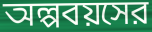
অল্পবয়সের